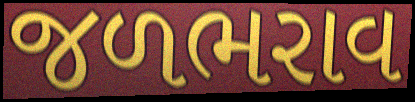
જળભરાવ